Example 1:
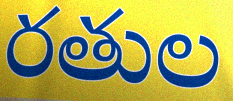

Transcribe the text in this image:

రతుల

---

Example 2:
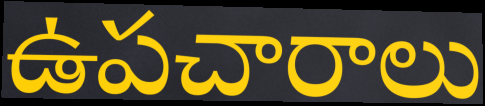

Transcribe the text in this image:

ఉపచారాలు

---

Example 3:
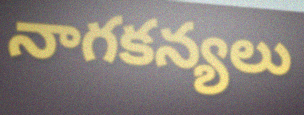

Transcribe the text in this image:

నాగకన్యలు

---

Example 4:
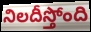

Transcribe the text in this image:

నిలదీస్తోంది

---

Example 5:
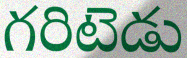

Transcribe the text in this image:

గరిటెడు